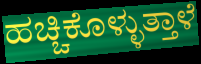
ಹಚ್ಚಿಕೊಳ್ಳುತ್ತಾಳೆ